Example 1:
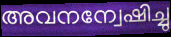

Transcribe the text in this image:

അവനന്വേഷിച്ചു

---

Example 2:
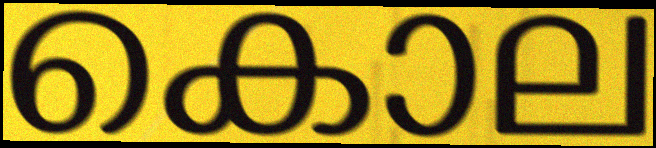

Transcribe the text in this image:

കൊല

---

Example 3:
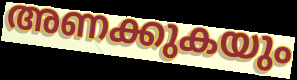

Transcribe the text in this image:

അണക്കുകയും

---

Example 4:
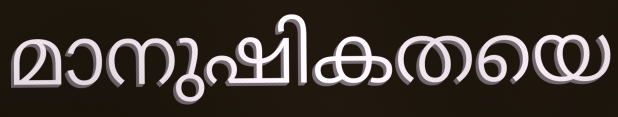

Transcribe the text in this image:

മാനുഷികതയെ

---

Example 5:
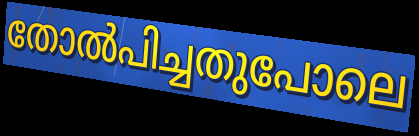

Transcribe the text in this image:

തോൽപിച്ചതുപോലെ